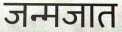
जन्मजात